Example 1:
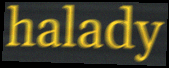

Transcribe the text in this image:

halady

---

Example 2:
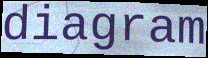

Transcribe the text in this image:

diagram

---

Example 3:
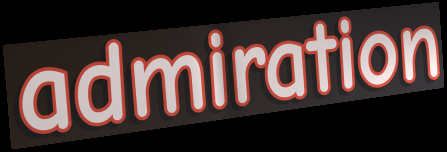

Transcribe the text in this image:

admiration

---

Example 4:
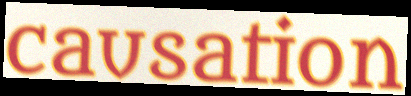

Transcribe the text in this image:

causation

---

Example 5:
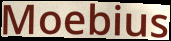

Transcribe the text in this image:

Moebius